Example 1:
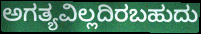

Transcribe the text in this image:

ಅಗತ್ಯವಿಲ್ಲದಿರಬಹುದು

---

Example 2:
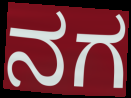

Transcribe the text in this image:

ನಗ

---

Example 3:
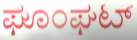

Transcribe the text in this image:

ಘೂಂಘಟ್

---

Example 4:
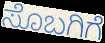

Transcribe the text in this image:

ಸೊಬಗಿಗೆ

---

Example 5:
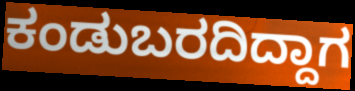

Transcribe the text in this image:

ಕಂಡುಬರದಿದ್ದಾಗ